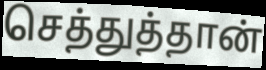
செத்துத்தான்